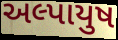
અલ્પાયુષ